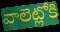
వాలెట్లోకి